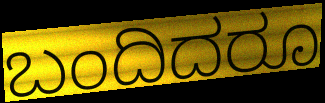
ಬಂದಿದರೂ